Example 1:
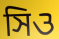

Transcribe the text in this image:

সিও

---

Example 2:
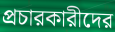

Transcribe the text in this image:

প্রচারকারীদের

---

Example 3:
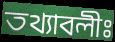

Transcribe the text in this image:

তথ্যাবলীঃ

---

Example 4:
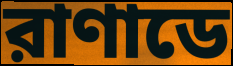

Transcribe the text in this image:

রাণাডে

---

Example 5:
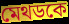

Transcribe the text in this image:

মেথডকে